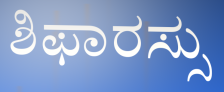
ಶಿಫಾರಸ್ಸು